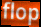
flop